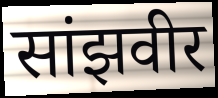
सांझवीर